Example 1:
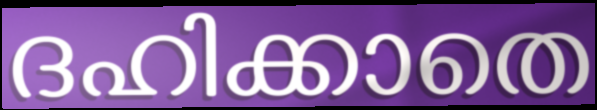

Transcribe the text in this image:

ദഹിക്കാതെ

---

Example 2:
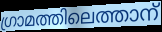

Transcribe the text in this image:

ഗ്രാമത്തിലെത്താന്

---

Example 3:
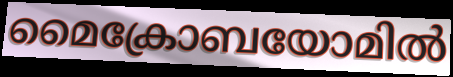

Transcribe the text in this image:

മൈക്രോബയോമിൽ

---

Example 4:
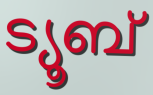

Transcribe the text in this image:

ട്യൂബ്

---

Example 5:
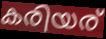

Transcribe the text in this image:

കരിയര്